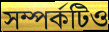
সম্পর্কটিও